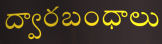
ద్వారబంధాలు